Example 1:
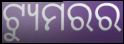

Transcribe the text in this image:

ଟ୍ୟୁମରର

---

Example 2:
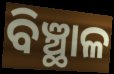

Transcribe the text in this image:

ବିଞ୍ଛାଳ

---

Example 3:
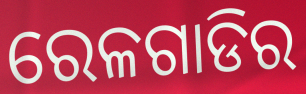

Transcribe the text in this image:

ରେଳଗାଡିର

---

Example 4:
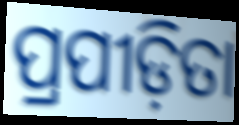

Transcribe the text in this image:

ପ୍ରପୀଡ଼ିତା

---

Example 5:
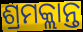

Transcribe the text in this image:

ଶ୍ରମକ୍ଲାନ୍ତ